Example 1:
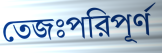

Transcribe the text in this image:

তেজঃপরিপূর্ণ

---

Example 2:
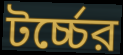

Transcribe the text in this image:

টর্চ্চের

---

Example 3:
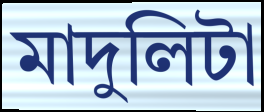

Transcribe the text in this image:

মাদুলিটা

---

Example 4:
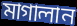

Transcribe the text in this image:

মাগালান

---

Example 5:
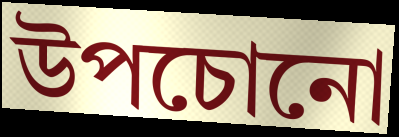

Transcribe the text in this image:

উপচোনো